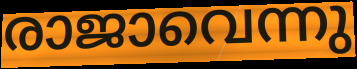
രാജാവെന്നു